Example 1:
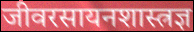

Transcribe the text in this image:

जीवरसायनशास्त्रज्ञ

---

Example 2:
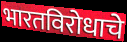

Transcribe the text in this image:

भारतविरोधाचे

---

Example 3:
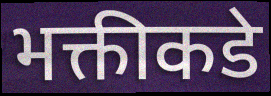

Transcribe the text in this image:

भक्तीकडे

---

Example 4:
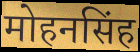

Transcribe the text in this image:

मोहनसिंह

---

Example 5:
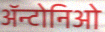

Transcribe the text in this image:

ॲन्टोनिओ